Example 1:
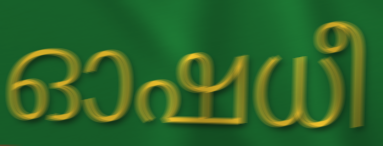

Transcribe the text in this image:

ഓഷധീ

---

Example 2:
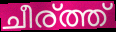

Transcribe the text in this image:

ചീര്ത്ത്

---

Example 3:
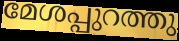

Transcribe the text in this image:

മേശപ്പുറത്തു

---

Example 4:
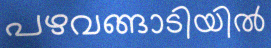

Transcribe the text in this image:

പഴവങ്ങാടിയിൽ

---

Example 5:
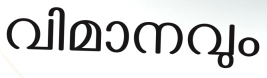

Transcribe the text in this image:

വിമാനവും